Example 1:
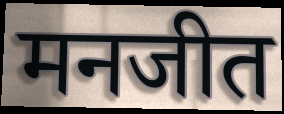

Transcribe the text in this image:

मनजीत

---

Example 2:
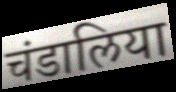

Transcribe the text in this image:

चंडालिया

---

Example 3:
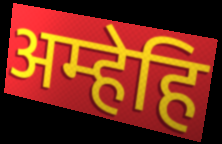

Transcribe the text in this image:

अम्हेहि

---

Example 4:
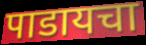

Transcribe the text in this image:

पाडायचा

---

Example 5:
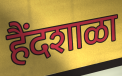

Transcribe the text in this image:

हैंदशाळा